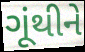
ગૂંથીને